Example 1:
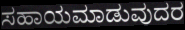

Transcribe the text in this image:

ಸಹಾಯಮಾಡುವುದರ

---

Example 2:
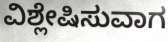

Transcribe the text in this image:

ವಿಶ್ಲೇಷಿಸುವಾಗ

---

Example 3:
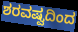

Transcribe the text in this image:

ಶರವಷ್ವದಿಂದ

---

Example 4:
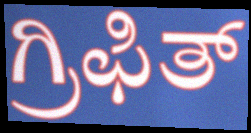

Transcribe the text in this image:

ಗ್ರಿಫಿತ್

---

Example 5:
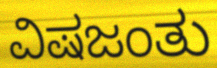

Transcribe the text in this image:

ವಿಷಜಂತು